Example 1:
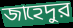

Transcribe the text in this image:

জাহেদুর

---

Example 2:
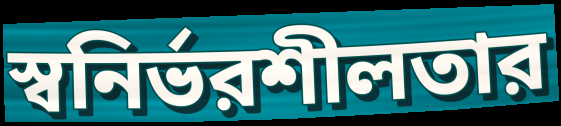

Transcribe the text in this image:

স্বনির্ভরশীলতার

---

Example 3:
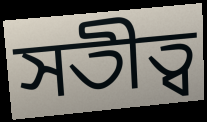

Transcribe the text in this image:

সতীত্ব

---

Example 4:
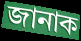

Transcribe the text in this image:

জানাক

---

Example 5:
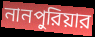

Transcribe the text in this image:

নানপুরিয়ার